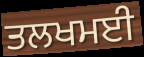
ਤਲਖਮਈ